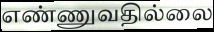
எண்ணுவதில்லை